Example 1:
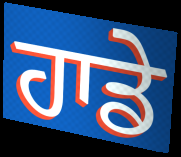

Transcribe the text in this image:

ਹਾਡੇ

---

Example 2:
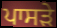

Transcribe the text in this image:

ਪਾਸੜੇ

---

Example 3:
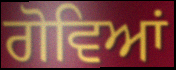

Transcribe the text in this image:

ਗੋਵਿਆਂ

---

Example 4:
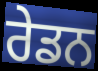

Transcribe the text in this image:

ਰੇਡਨ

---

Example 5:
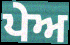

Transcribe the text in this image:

ਪੇਅ